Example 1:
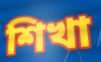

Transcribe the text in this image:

শিখা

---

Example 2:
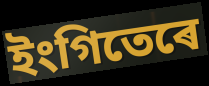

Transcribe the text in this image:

ইংগিতেৰে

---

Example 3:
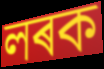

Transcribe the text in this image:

লৰক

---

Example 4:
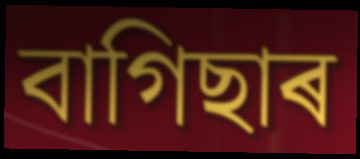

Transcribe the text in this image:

বাগিছাৰ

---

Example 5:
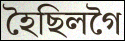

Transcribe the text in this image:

হৈছিলগৈ